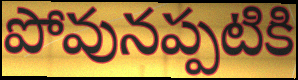
పోవునప్పటికి